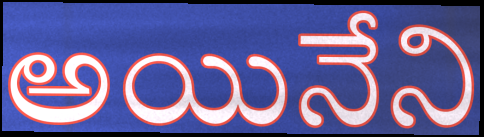
అయినేని